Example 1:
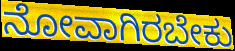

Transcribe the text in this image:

ನೋವಾಗಿರಬೇಕು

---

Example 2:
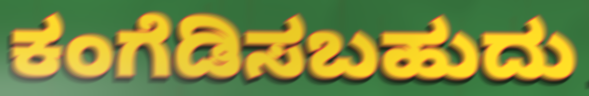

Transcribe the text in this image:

ಕಂಗೆಡಿಸಬಹುದು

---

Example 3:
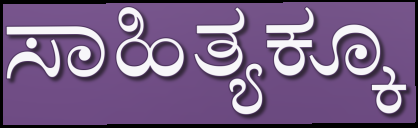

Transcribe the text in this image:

ಸಾಹಿತ್ಯಕ್ಕೂ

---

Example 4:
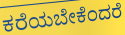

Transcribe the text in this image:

ಕರೆಯಬೇಕೆಂದರೆ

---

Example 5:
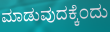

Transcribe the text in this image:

ಮಾಡುವುದಕ್ಕೆಂದು